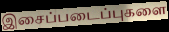
இசைப்படைப்புகளை